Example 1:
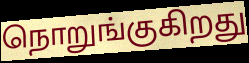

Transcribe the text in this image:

நொறுங்குகிறது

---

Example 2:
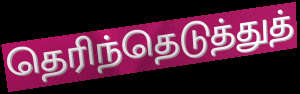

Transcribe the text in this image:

தெரிந்தெடுத்துத்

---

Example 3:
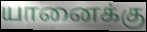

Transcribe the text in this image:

யானைக்கு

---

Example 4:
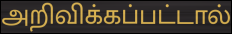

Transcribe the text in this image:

அறிவிக்கப்பட்டால்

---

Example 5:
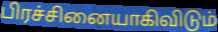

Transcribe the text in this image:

பிரச்சினையாகிவிடும்